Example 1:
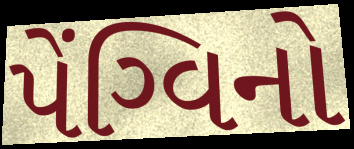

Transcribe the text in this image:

પેંગ્વિનો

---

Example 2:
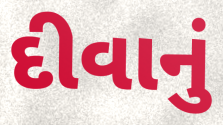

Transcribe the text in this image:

દીવાનું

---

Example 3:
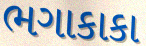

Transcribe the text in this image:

ભગાકાકા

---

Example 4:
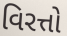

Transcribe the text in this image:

વિરત્તો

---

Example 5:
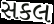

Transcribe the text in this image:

સકલ